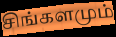
சிங்களமும்